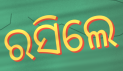
ରସିଲେ